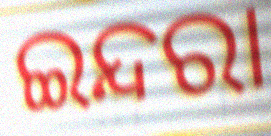
ଇନ୍ଦରା